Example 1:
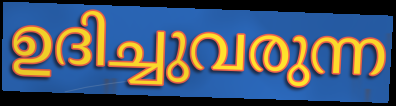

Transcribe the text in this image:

ഉദിച്ചുവരുന്ന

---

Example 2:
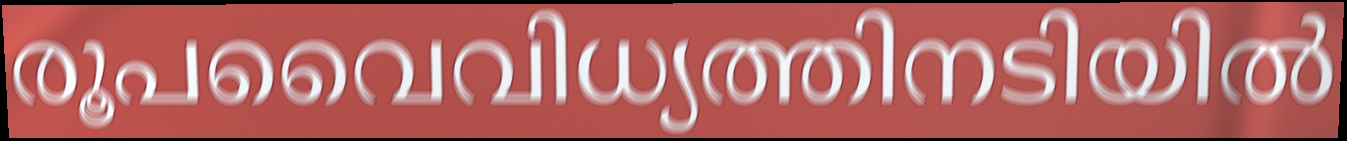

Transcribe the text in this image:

രൂപവൈവിധ്യത്തിനടിയിൽ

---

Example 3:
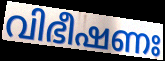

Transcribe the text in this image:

വിഭീഷണഃ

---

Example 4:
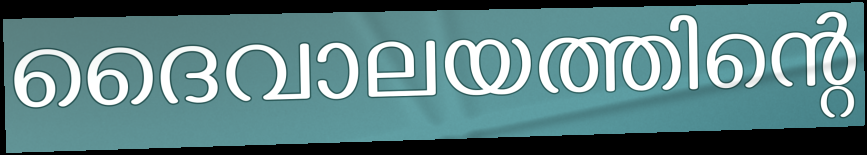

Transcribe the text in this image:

ദൈവാലയത്തിന്റെ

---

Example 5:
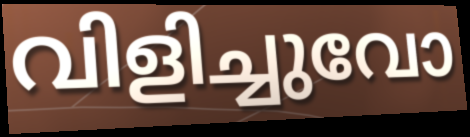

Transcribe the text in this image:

വിളിച്ചുവോ